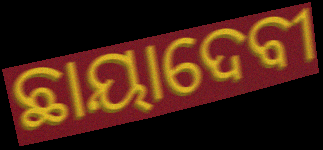
ଛାୟାଦେବୀ